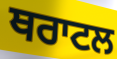
ਥਰਾਟਲ